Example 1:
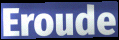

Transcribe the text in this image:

Eroude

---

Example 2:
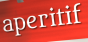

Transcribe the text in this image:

aperitif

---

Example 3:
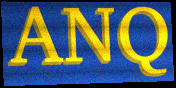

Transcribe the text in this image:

ANQ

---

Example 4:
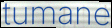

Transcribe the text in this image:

tumane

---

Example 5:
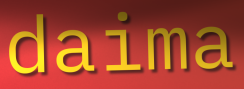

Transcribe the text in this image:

daima